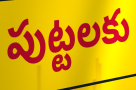
పుట్టలకు